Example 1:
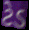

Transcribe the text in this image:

ટેડ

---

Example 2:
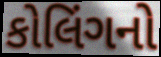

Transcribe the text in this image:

કોલિંગનો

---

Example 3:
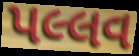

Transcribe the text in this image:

પલ્લવ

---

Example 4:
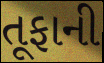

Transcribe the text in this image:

તૂફાની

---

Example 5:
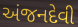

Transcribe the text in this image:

અંજનદેવી